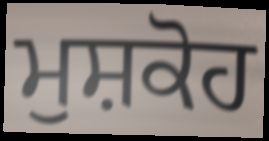
ਮੁਸ਼ਕੋਹ